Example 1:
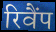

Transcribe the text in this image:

रिवैंप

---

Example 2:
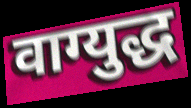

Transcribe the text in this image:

वाग्युद्ध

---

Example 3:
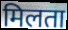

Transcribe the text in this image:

मिलता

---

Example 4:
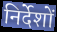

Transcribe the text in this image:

निर्देशों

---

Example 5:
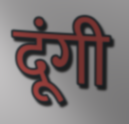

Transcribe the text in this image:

दूंगी